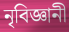
নৃবিজ্ঞানী